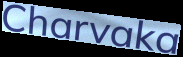
Charvaka